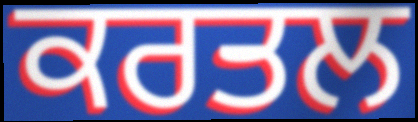
ਕਰਤਲ